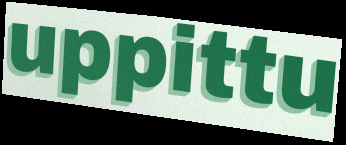
uppittu